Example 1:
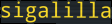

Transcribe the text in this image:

sigalilla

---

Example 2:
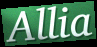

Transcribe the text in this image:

Allia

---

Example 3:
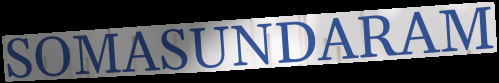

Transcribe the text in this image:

SOMASUNDARAM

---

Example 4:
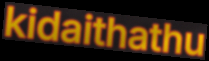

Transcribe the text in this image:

kidaithathu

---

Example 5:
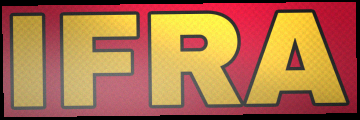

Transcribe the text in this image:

IFRA